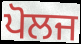
ਪੋਲਜ